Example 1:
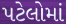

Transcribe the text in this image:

પટેલોમાં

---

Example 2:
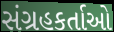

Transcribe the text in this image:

સંગ્રહકર્તાઓ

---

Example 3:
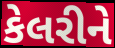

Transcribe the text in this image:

કેલરીને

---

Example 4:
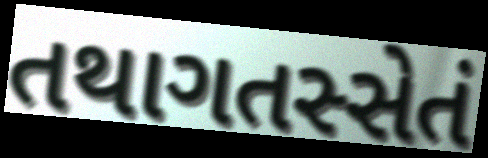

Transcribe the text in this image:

તથાગતસ્સેતં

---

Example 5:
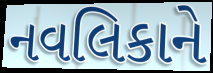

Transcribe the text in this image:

નવલિકાને